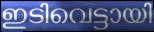
ഇടിവെട്ടായി